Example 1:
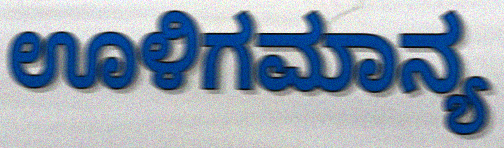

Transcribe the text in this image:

ಊಳಿಗಮಾನ್ಯ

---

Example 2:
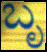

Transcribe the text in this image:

ಬೃ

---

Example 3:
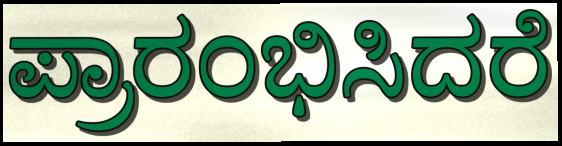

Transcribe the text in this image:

ಪ್ರಾರಂಭಿಸಿದರೆ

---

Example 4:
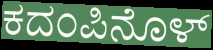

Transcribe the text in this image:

ಕದಂಪಿನೊಳ್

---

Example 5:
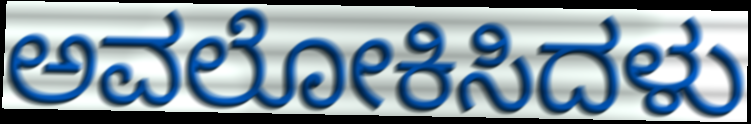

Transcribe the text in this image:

ಅವಲೋಕಿಸಿದಳು